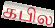
கபில